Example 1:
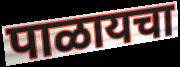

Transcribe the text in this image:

पाळायचा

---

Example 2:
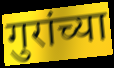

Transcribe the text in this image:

गुरांच्या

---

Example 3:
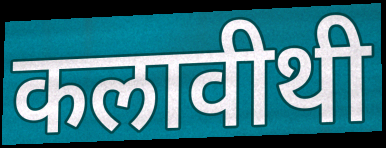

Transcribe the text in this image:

कलावीथी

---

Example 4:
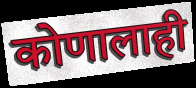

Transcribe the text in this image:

कोणालाही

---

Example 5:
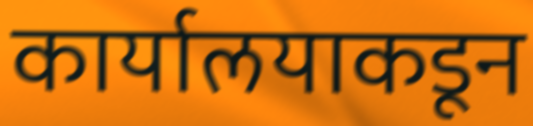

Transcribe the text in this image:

कार्यालयाकडून